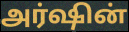
அர்ஷின்